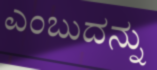
ಎಂಬುದನ್ನು